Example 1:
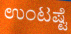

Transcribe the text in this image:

ಉಂಟಷ್ಟೆ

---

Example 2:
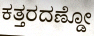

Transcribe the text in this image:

ಕತ್ತರದಣ್ಡೋ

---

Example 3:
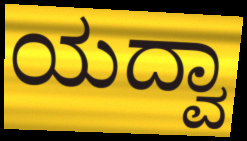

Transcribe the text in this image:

ಯದ್ವಾ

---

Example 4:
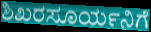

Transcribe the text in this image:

ಶಿಖರಸೂರ್ಯನಿಗೆ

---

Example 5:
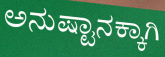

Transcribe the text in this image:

ಅನುಷ್ಟಾನಕ್ಕಾಗಿ